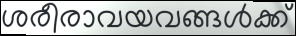
ശരീരാവയവങ്ങൾക്ക്